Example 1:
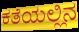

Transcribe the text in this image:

ಕತೆಯಲ್ಲಿನ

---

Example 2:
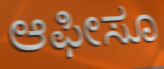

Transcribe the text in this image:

ಆಫೀಸೂ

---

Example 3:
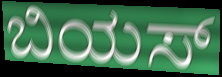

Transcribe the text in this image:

ಬಿಯಸ್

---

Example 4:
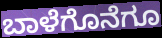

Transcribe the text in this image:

ಬಾಳೆಗೊನೆಗೂ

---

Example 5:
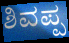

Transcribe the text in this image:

ಶಿವಪ್ಪ